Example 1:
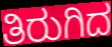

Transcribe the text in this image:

ತಿರುಗಿದ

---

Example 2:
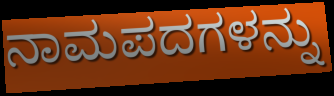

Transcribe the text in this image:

ನಾಮಪದಗಳನ್ನು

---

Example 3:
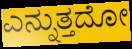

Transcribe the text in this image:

ಎನ್ನುತ್ತದೋ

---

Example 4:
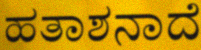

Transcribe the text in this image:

ಹತಾಶನಾದೆ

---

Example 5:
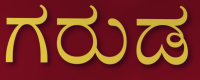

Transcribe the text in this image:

ಗರುಡ